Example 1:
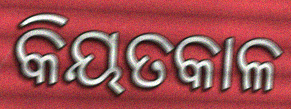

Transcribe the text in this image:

କିୟତକାଳ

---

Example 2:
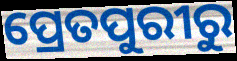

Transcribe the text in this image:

ପ୍ରେତପୁରୀରୁ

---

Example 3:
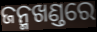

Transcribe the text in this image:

ଜନ୍ମଖଣ୍ଡରେ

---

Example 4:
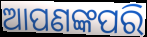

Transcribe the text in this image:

ଆପଣଙ୍କପରି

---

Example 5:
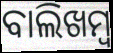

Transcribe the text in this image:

ବାଲିଖମ୍ବ